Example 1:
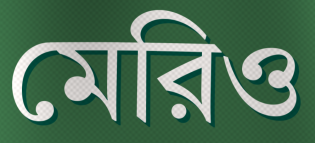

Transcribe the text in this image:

মেরিও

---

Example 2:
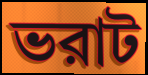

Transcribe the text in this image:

ভরাট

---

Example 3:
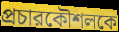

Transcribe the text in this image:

প্রচারকৌশলকে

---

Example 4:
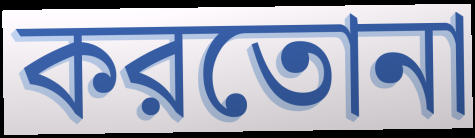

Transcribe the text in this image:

করতোনা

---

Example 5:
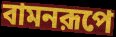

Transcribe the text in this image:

বামনরূপে